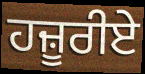
ਹਜ਼ੂਰੀਏ